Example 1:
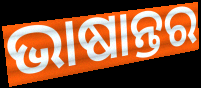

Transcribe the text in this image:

ଭାଷାନ୍ତର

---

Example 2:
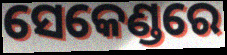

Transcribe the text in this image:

ସେକେଣ୍ଡରେ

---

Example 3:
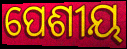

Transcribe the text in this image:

ପେଶୀୟ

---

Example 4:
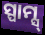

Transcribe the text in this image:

ସ୍ପାମ୍ସ୍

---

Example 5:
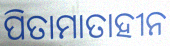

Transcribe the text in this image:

ପିତାମାତାହୀନ